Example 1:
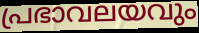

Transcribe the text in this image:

പ്രഭാവലയവും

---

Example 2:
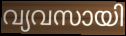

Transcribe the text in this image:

വ്യവസായി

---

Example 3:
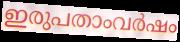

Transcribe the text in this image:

ഇരുപതാംവർഷം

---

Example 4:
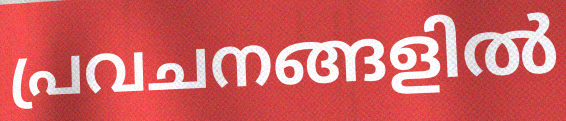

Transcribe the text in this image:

പ്രവചനങ്ങളിൽ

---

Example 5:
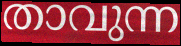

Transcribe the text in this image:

താവുന്ന